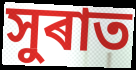
সুৰাত